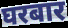
घरबार